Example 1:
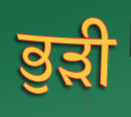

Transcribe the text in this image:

ਭੁੜੀ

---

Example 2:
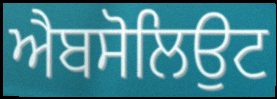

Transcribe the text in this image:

ਐਬਸੋਲਿਉਟ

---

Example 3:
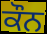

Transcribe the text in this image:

ਕੌਨ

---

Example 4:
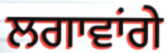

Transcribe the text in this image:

ਲਗਾਵਾਂਗੇ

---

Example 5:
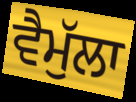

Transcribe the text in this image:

ਵੈਮੁੱਲਾ